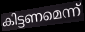
കിട്ടണമെന്ന്